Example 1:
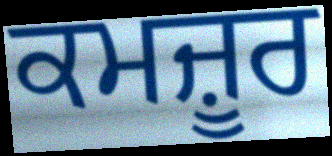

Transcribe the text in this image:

ਕਮਜ਼ੂਰ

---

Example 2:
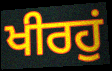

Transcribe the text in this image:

ਖੀਰਹੁਂ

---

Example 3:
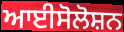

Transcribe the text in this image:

ਆਈਸੋਲੋਸ਼ਨ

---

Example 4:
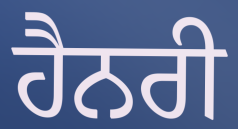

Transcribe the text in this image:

ਹੈਨਰੀ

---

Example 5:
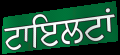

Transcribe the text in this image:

ਟਾਇਲਟਾਂ